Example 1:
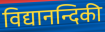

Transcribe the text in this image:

विद्यानन्दिकी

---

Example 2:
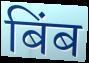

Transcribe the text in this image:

बिंब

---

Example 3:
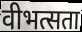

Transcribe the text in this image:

वीभत्सता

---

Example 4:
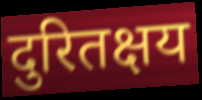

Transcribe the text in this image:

दुरितक्षय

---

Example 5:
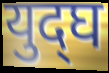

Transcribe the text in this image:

युद्घ